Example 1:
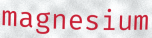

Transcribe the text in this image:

magnesium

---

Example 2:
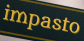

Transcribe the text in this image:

impasto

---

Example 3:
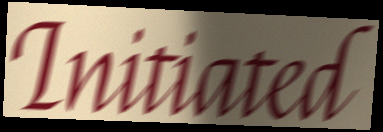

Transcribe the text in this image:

Initiated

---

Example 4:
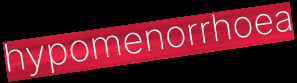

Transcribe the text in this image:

hypomenorrhoea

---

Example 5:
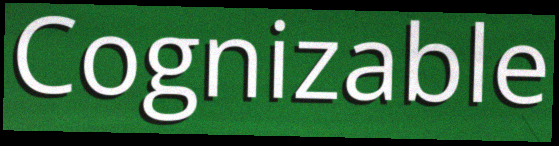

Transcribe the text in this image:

Cognizable